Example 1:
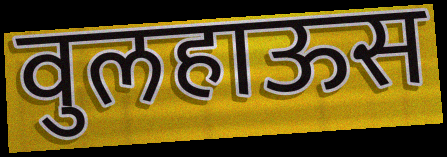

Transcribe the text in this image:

वुलहाऊस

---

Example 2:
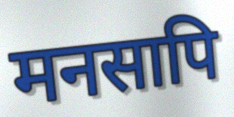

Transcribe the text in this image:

मनसापि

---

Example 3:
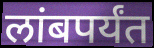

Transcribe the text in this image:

लांबपर्यंत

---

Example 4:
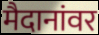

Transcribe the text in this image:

मैदानांवर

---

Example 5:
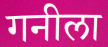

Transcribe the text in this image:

गनीला